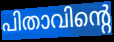
പിതാവിന്റെ